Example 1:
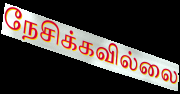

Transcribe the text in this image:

நேசிக்கவில்லை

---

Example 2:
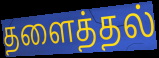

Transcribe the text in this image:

தளைத்தல்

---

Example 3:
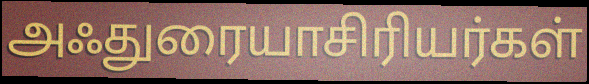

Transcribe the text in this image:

அஃதுரையாசிரியர்கள்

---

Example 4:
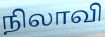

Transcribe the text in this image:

நிலாவி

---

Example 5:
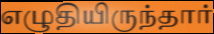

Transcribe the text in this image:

எழுதியிருந்தார்